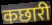
कछारी